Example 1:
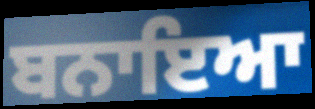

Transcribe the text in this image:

ਬਨਾਇਆ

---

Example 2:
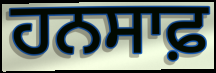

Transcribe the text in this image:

ਹਨਸਾਫ਼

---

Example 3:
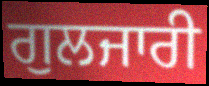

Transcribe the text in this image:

ਗੁਲਜਾਰੀ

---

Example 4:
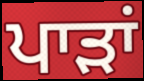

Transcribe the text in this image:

ਪਾੜਾਂ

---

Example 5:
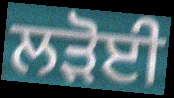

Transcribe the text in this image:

ਲੜੋਈ